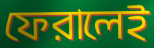
ফেরালেই